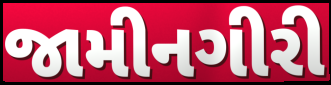
જામીનગીરી